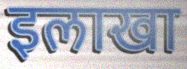
इलाखा